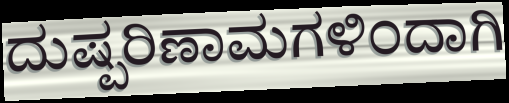
ದುಷ್ಪರಿಣಾಮಗಳಿಂದಾಗಿ